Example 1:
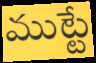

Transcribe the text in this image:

ముట్టే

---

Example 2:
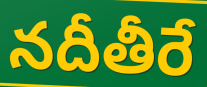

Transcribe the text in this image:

నదీతీరే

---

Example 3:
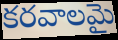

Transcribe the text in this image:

కరవాలమై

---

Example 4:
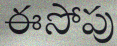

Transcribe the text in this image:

ఈసోపు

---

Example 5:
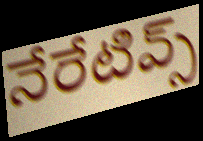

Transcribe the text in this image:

నేరేటివ్స్